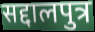
सद्दालपुत्र